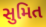
સુમિત